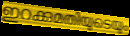
ഇറക്കുമതിയുടെയും